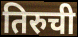
तिरुची